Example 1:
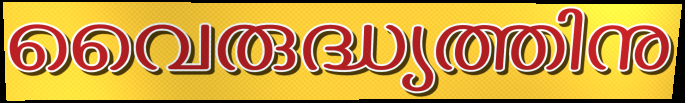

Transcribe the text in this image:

വൈരുദ്ധ്യത്തിനു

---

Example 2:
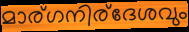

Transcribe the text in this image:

മാര്ഗനിര്ദേശവും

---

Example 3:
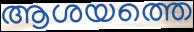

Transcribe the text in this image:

ആശയത്തെ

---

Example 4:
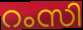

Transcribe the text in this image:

റംസി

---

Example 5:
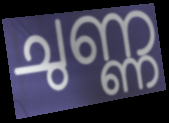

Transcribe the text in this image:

ചുണ്ണ